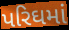
પરિઘમાં